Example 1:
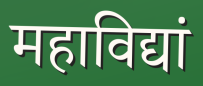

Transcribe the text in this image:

महाविद्यां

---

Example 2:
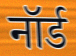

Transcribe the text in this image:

नॉर्ड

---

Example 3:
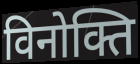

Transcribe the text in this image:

विनोक्ति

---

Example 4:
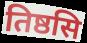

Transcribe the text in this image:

तिष्ठसि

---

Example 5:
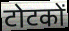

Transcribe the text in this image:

टोटकों